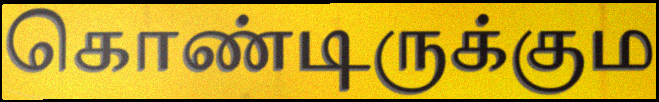
கொண்டிருக்கும